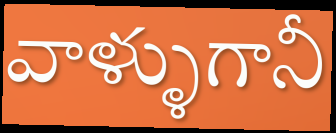
వాళ్ళుగానీ